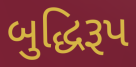
બુદ્ધિરૂપ